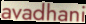
avadhani